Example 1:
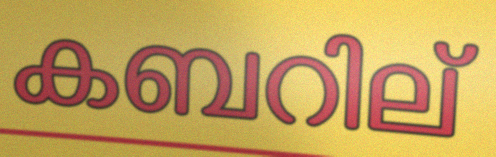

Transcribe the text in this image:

കബറില്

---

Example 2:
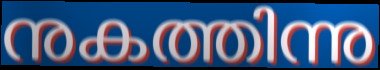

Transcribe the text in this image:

നുകത്തിന്നു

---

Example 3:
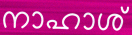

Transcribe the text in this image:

നാഹാശ്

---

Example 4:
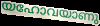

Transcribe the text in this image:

യഹോവയാണു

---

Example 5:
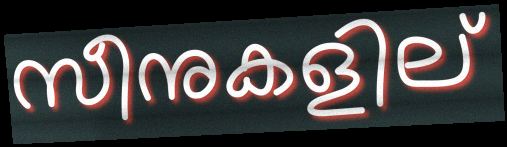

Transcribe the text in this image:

സീനുകളില്